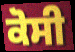
ਕੋਸੀ